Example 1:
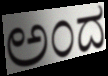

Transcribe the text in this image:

ಅಂದ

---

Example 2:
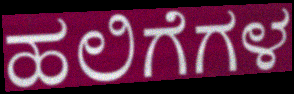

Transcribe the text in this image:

ಹಲಿಗೆಗಳ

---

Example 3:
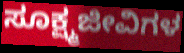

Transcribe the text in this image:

ಸೂಕ್ಷ್ಮಜೀವಿಗಳ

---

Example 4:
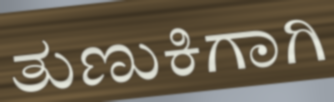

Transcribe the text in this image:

ತುಣುಕಿಗಾಗಿ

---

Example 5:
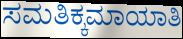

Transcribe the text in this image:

ಸಮತಿಕ್ಕಮಾಯಾತಿ